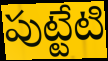
పుట్టేటి